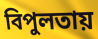
বিপুলতায়